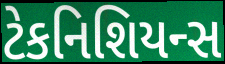
ટેકનિશિયન્સ